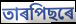
তাৰপিছৰে